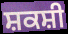
ਸ਼ਕਸ਼ੀ